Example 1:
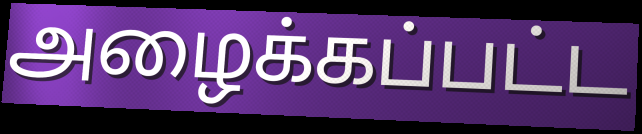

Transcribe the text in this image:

அழைக்கப்பட்ட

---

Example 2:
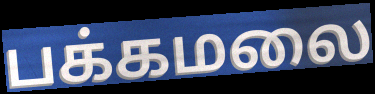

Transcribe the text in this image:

பக்கமலை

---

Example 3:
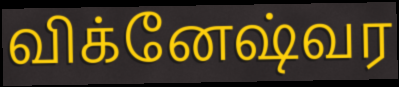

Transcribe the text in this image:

விக்னேஷ்வர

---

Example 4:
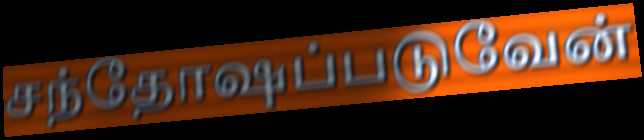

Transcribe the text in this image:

சந்தோஷப்படுவேன்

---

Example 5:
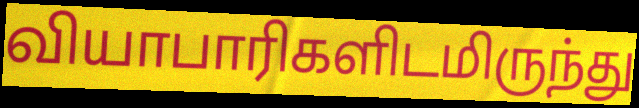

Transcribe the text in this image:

வியாபாரிகளிடமிருந்து